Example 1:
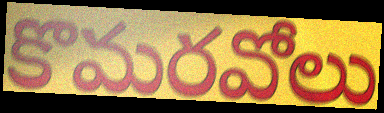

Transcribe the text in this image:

కొమరవోలు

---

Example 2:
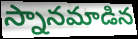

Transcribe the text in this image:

స్నానమాడిన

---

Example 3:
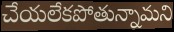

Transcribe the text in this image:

చేయలేకపోతున్నామని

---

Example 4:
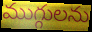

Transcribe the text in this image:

ముగ్గులను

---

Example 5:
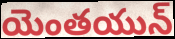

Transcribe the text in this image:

యెంతయున్